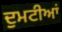
ਦੁਮਟੀਆਂ